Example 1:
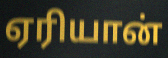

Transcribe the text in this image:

ஏரியான்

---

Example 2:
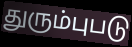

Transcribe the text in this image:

துரும்புபடு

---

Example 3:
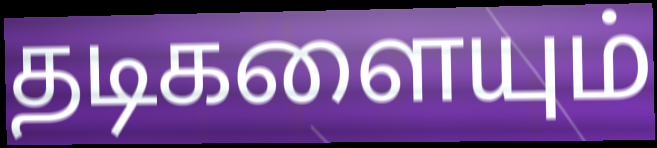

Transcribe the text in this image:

தடிகளையும்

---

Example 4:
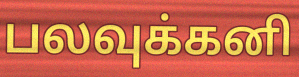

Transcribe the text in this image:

பலவுக்கனி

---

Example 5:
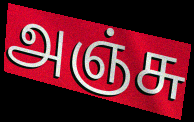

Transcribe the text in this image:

அஞ்சு